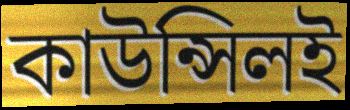
কাউন্সিলই